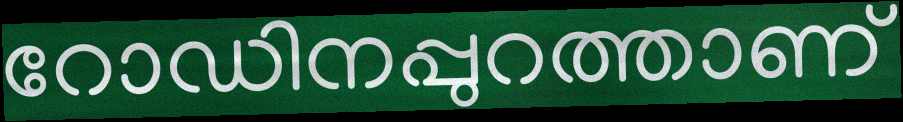
റോഡിനപ്പുറത്താണ്